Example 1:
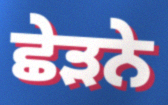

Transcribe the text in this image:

ਛੇੜਨੇ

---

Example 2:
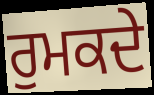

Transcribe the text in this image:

ਰੁਮਕਦੇ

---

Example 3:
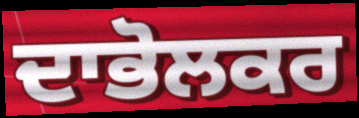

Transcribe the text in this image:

ਦਾਭੋਲਕਰ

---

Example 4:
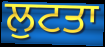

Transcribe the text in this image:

ਲੁਟਤਾ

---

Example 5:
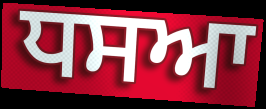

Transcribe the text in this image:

ਧਸਆ